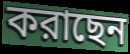
করাছেন